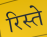
रिस्ते